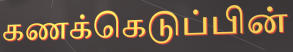
கணக்கெடுப்பின்